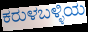
ಕರುಳಬಳ್ಳಿಯ